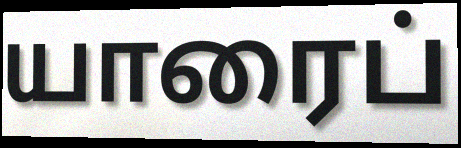
யாரைப்